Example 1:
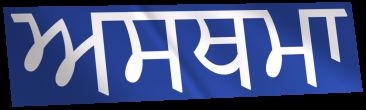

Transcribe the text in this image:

ਅਸਥਮਾ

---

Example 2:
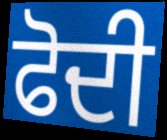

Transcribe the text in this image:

ਫੋਦੀ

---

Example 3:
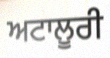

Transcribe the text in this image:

ਅਟਾਲੂਰੀ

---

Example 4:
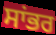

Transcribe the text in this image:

ਸਾਂਭਰ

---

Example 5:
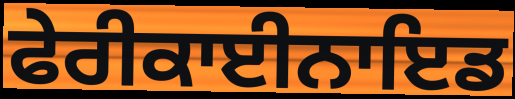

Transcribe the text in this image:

ਫੇਰੀਕਾਈਨਾਇਡ